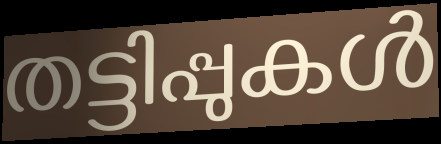
തട്ടിപ്പുകൾ